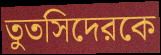
তুতসিদেরকে